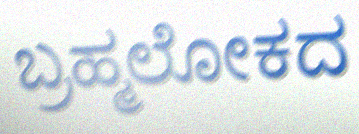
ಬ್ರಹ್ಮಲೋಕದ